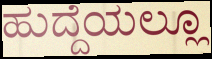
ಹುದ್ದೆಯಲ್ಲೂ